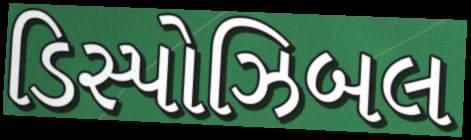
ડિસ્પોઝિબલ